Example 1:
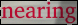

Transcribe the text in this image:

nearing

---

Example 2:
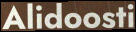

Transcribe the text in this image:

Alidoosti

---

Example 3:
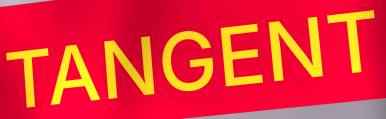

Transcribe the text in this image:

TANGENT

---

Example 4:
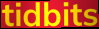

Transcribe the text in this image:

tidbits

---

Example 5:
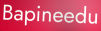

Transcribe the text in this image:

Bapineedu